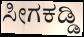
ಸೀಗಕಡ್ಡಿ